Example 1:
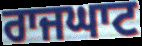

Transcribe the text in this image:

ਰਾਜਘਾਟ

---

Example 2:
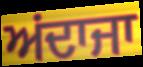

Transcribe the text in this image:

ਅਂਦਾਜਾ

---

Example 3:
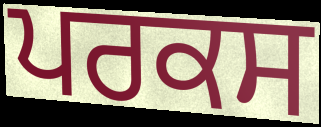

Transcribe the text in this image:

ਪਰਕਸ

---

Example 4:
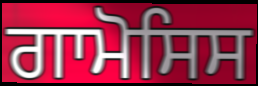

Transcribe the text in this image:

ਗਾਮੋਸਿਸ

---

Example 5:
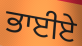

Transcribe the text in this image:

ਭਾਈਏ